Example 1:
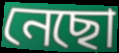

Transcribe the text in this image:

নেছো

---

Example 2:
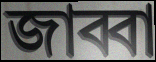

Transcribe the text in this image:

জাব্বা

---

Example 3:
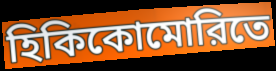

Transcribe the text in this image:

হিকিকোমোরিতে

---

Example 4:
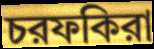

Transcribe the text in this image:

চরফকিরা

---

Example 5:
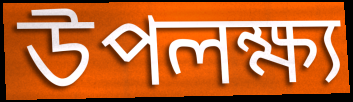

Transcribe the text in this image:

উপলক্ষ্য